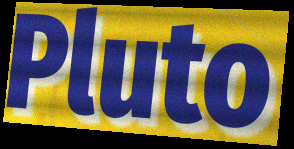
Pluto